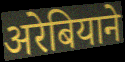
अरेबियाने